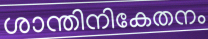
ശാന്തിനികേതനം